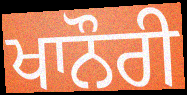
ਖਾਨੌਰੀ